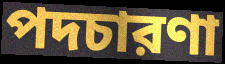
পদচারণা